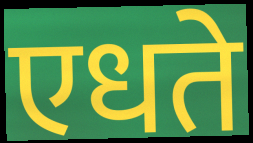
एधते